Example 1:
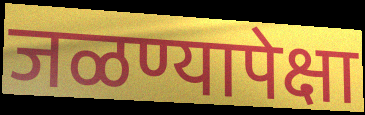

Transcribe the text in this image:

जळण्यापेक्षा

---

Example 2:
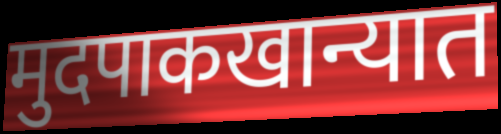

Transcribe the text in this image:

मुदपाकखान्यात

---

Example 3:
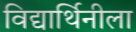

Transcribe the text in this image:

विद्यार्थिनीला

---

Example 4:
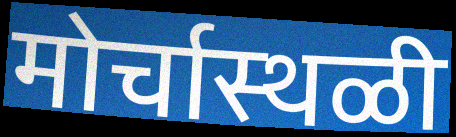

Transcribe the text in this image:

मोर्चास्थळी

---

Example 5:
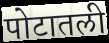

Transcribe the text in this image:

पोटातली